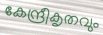
കേന്ദ്രീകൃതവും